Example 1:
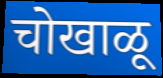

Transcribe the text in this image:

चोखाळू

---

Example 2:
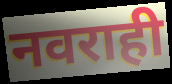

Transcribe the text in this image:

नवराही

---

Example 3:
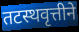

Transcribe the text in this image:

तटस्थवृत्तीने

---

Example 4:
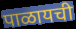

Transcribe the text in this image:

पाळायची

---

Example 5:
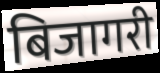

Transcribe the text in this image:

बिजागरी